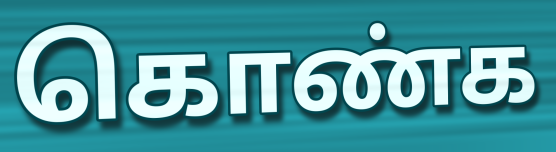
கொண்க